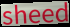
sheed